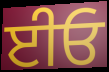
ਈਓ